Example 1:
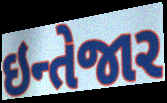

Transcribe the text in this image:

ઇન્તેજાર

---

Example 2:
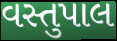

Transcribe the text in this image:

વસ્તુપાલ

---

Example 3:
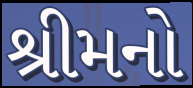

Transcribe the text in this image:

શ્રીમનો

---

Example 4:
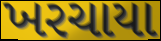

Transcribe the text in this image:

ખરચાયા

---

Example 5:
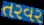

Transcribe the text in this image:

તરવર